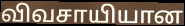
விவசாயியான